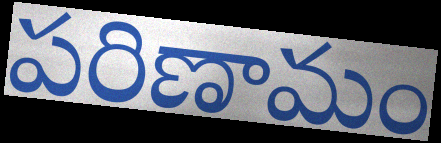
పరిణామం